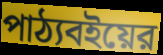
পাঠ্যবইয়ের